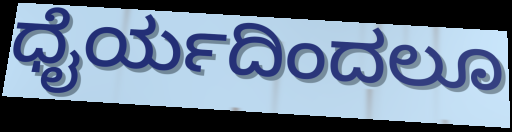
ಧೈರ್ಯದಿಂದಲೂ